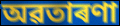
অৱতাৰণা